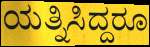
ಯತ್ನಿಸಿದ್ದರೂ